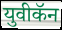
युवीकॅन